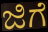
ಜಿಗೆ